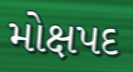
મોક્ષપદ